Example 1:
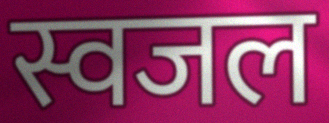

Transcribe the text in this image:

स्वजल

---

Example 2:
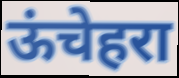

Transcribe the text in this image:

ऊंचेहरा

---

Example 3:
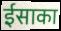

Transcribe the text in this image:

ईसाका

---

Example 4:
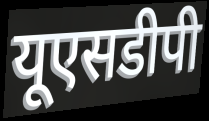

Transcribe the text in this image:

यूएसडीपी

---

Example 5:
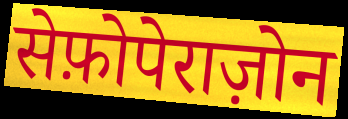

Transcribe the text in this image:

सेफ़ोपेराज़ोन